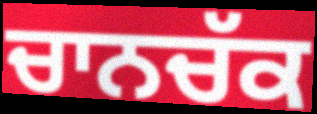
ਚਾਨਚੱਕ